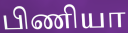
பிணியா